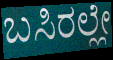
ಬಸಿರಲ್ಲೇ